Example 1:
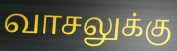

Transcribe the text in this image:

வாசலுக்கு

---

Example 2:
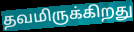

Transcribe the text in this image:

தவமிருக்கிறது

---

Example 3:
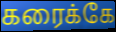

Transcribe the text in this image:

கரைக்கே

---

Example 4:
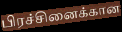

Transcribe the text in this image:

பிரச்சினைக்கான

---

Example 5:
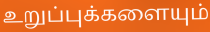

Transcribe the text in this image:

உறுப்புக்களையும்